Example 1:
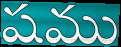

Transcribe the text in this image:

షము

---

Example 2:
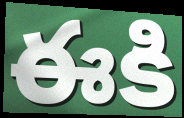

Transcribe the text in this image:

ఈకి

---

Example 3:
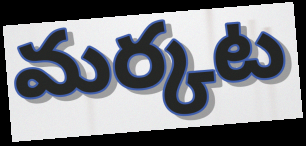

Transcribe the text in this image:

మర్కట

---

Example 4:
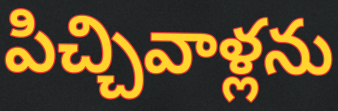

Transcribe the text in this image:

పిచ్చివాళ్లను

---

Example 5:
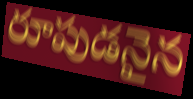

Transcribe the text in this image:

రూపుడనైన